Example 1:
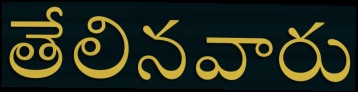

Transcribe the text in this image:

తేలినవారు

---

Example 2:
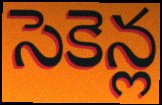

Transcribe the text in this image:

సెకెన్ల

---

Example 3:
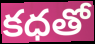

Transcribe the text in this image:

కధతో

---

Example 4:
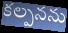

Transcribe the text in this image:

కల్పనను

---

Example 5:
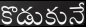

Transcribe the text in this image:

కొడుకునే